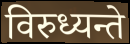
विरुध्यन्ते